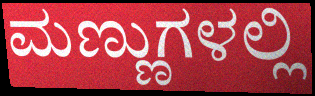
ಮಣ್ಣುಗಳಲ್ಲಿ